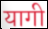
यागी